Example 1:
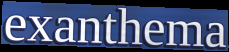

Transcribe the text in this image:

exanthema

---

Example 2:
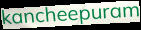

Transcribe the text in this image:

kancheepuram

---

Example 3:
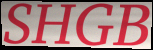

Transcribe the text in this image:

SHGB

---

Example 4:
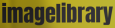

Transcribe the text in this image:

imagelibrary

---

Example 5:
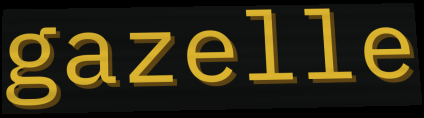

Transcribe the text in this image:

gazelle